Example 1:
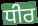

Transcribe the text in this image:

ਧੀਰ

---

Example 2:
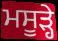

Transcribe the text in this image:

ਮਸੂੜ੍ਹੇ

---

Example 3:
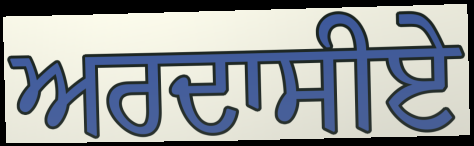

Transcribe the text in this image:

ਅਰਦਾਸੀਏ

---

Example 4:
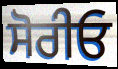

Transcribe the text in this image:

ਸੋਰੀਓ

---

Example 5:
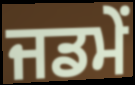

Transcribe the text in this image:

ਜਡਮੇਂ